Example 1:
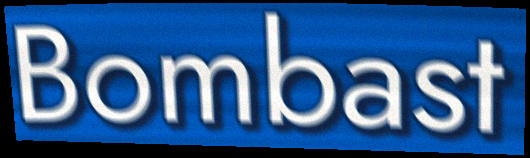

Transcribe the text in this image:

Bombast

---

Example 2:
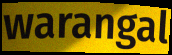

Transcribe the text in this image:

warangal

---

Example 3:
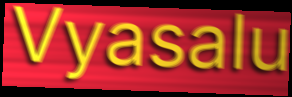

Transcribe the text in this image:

Vyasalu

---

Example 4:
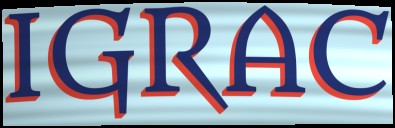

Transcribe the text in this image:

IGRAC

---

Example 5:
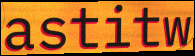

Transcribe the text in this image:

astitw